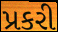
પ્રકરી